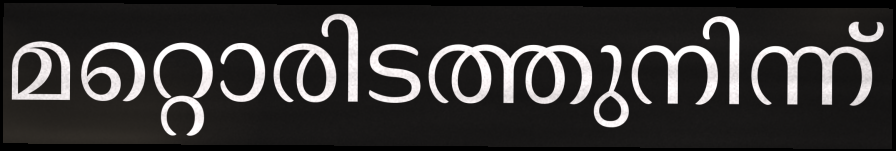
മറ്റൊരിടത്തുനിന്ന്